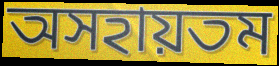
অসহায়তম